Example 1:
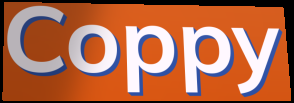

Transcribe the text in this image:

Coppy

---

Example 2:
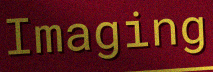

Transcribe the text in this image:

Imaging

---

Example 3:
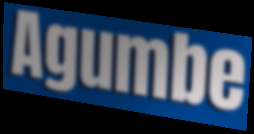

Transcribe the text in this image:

Agumbe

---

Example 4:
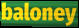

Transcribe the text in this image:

baloney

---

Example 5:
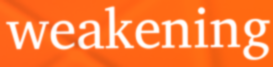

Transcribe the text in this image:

weakening